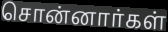
சொன்னார்கள்